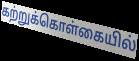
கற்றுக்கொள்கையில்